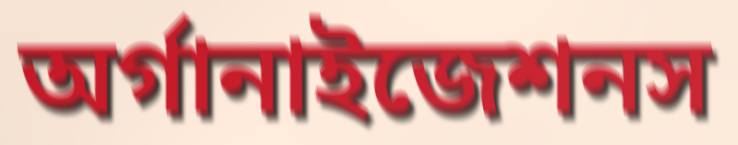
অর্গানাইজেশনস